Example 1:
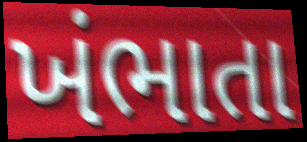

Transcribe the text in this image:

ખંભાતા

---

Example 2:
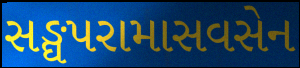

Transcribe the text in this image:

સઙ્ઘપરામાસવસેન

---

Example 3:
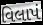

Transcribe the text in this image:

વિલાપં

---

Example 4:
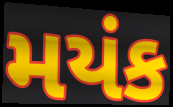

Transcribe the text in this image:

મયંક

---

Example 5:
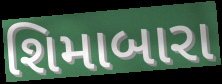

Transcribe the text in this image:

શિમાબારા